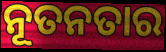
ନୂତନତାର